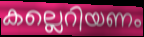
കല്ലെറിയണം